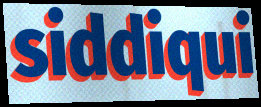
siddiqui